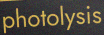
photolysis